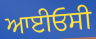
ਆਈਓਸੀ